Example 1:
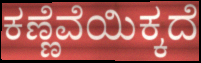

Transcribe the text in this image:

ಕಣ್ಣೆವೆಯಿಕ್ಕದೆ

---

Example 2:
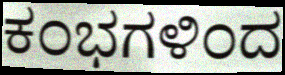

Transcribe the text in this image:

ಕಂಭಗಳಿಂದ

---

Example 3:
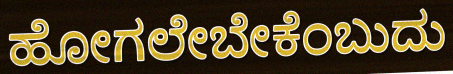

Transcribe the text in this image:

ಹೋಗಲೇಬೇಕೆಂಬುದು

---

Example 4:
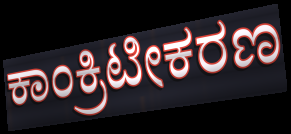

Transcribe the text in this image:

ಕಾಂಕ್ರಿಟೀಕರಣ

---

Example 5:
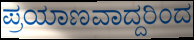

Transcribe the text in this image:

ಪ್ರಯಾಣವಾದ್ದರಿಂದ